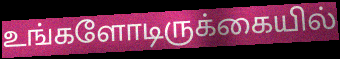
உங்களோடிருக்கையில்